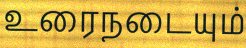
உரைநடையும்